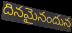
దినమైనందున